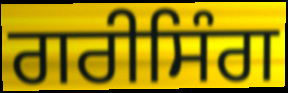
ਗਰੀਸਿੰਗ